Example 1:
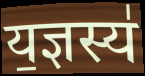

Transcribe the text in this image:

य॒ज्ञस्य॑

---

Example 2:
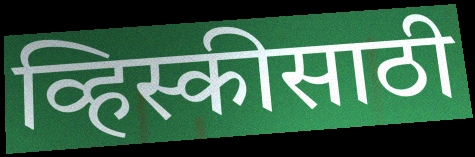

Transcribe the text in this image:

व्हिस्कीसाठी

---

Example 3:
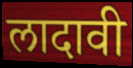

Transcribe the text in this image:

लादावी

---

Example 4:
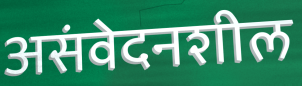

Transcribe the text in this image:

असंवेदनशील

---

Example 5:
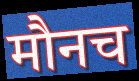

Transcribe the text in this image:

मौनच